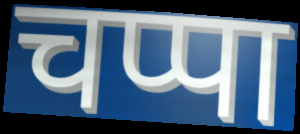
चप्पा